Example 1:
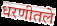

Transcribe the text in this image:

धरणीतले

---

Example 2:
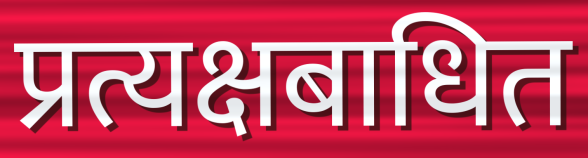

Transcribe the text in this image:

प्रत्यक्षबाधित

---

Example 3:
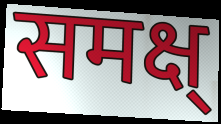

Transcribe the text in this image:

समक्ष्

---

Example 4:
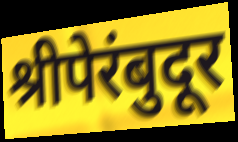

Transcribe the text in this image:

श्रीपेरंबुदूर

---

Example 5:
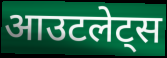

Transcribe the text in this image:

आउटलेट्स